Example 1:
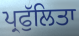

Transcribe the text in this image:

ਪ੍ਰਫੁੱਲਿਤਾ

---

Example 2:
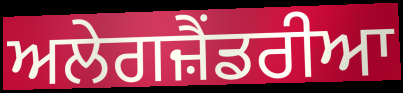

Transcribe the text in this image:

ਅਲੇਗਜ਼ੈਂਡਰੀਆ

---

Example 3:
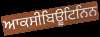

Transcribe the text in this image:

ਆਕਸੀਬਿਊਟਿਨਿਨ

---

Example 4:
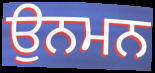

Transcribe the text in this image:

ਉਨਮਨ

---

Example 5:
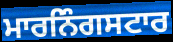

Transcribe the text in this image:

ਮਾਰਨਿੰਗਸਟਾਰ